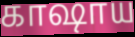
காஷாய